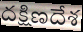
దక్షిణదేశ